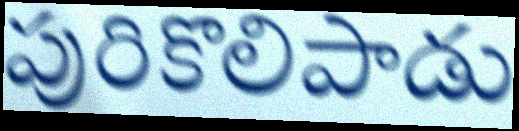
పురికొలిపాడు